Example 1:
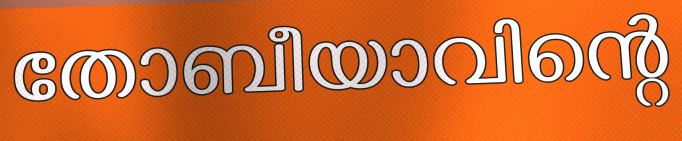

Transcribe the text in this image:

തോബീയാവിന്റെ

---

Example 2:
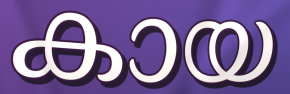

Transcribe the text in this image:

കായ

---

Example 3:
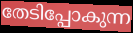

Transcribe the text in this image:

തേടിപ്പോകുന്ന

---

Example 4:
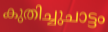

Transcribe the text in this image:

കുതിച്ചുചാട്ടം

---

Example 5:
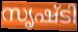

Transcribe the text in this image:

സൃഷ്ടി